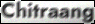
Chitraang